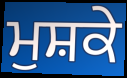
ਮੁਸ਼ਕੇ